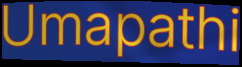
Umapathi